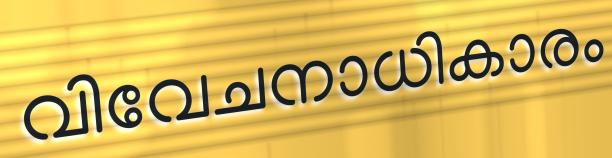
വിവേചനാധികാരം